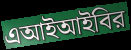
এআইআইবির